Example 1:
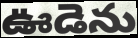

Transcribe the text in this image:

ఊడెను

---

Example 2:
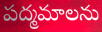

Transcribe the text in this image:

పద్మమాలను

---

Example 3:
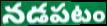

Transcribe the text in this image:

నడపటం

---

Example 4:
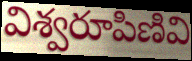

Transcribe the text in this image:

విశ్వరూపిణివి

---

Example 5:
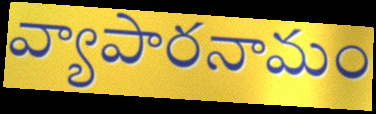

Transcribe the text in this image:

వ్యాపారనామం